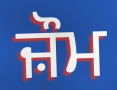
ਜ਼ੌਮ